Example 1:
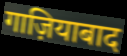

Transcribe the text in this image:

गाज़ियाबाद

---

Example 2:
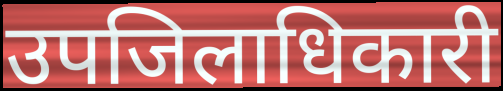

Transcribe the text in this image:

उपजिलाधिकारी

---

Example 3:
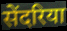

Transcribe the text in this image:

सेंदरिया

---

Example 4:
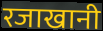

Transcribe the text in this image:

रजाखानी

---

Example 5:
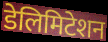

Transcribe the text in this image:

डेलिमिटेशन